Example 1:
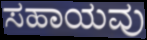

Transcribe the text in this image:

ಸಹಾಯವು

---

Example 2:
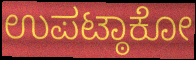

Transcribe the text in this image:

ಉಪಟ್ಠಾಕೋ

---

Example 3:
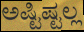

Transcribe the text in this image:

ಅಷ್ಟಿಷ್ಟಲ್ಲ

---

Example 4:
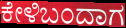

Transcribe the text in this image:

ಕೇಳಿಬಂದಾಗ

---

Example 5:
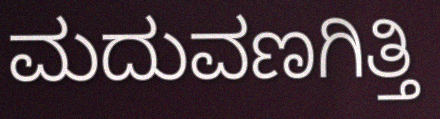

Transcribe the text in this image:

ಮದುವಣಗಿತ್ತಿ